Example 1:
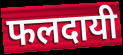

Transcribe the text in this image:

फलदायी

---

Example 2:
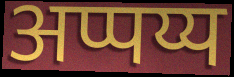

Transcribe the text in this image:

अप्पय्य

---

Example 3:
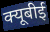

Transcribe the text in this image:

क्यूबीई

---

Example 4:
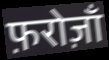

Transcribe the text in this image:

फ़रोज़ाँ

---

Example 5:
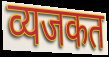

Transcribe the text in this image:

व्यजकत